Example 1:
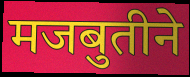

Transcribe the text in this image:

मजबुतीने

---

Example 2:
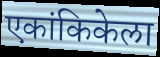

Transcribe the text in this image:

एकांकिकेला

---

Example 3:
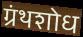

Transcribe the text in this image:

ग्रंथशोध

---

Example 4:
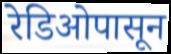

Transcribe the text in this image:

रेडिओपासून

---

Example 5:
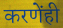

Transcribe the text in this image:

करणेंही